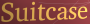
Suitcase